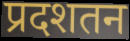
प्रदशतन